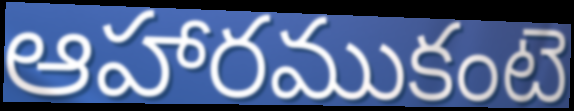
ఆహారముకంటె